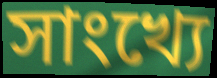
সাংখ্যে